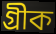
গ্ৰীক